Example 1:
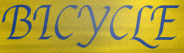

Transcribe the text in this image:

BICYCLE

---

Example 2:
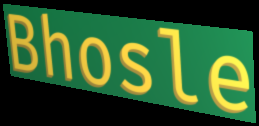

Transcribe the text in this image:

Bhosle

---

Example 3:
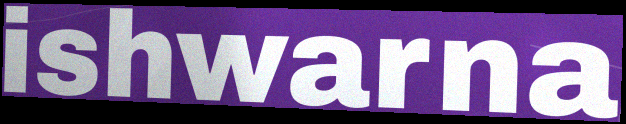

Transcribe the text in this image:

ishwarna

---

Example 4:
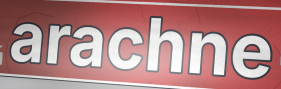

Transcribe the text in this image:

arachne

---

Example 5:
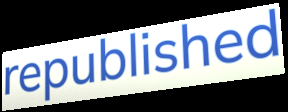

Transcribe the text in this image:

republished